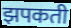
झपकती